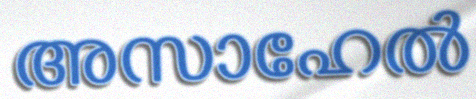
അസാഹേൽ